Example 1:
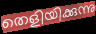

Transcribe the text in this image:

തെളിയിക്കുന്നു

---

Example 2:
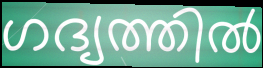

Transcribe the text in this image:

ഗദ്യത്തിൽ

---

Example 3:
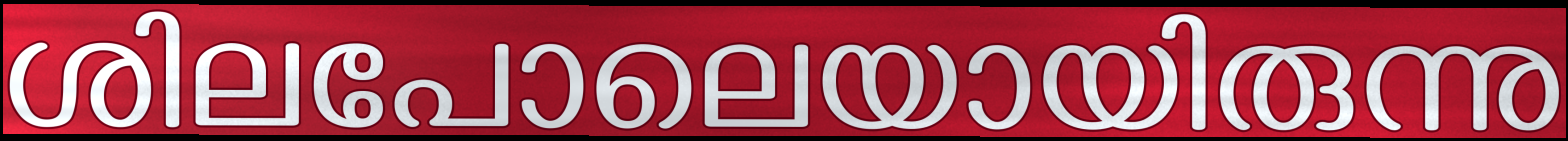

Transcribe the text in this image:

ശിലപോലെയായിരുന്നു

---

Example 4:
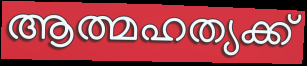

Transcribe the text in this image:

ആത്മഹത്യക്ക്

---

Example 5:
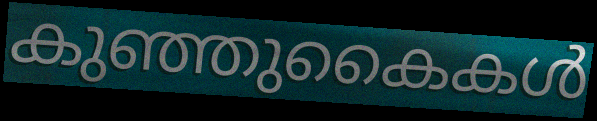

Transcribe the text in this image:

കുഞ്ഞുകൈകൾ